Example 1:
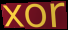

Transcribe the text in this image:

xor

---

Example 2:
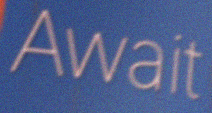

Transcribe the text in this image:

Await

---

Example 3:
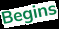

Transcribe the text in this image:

Begins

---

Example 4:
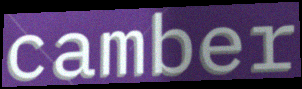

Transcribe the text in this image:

camber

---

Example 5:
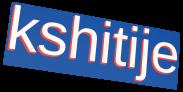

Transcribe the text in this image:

kshitije